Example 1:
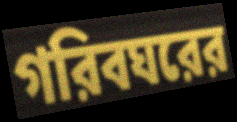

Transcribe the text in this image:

গরিবঘরের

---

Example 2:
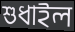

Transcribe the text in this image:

শুধাইল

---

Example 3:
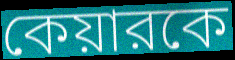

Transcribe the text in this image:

কেয়ারকে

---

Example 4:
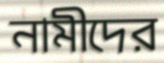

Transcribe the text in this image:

নামীদের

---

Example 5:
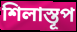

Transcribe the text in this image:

শিলাস্তূপ